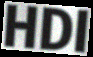
HDI